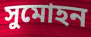
সুমোহন